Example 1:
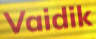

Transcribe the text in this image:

Vaidik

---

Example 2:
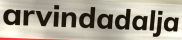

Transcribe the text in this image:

arvindadalja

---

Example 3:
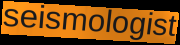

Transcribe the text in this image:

seismologist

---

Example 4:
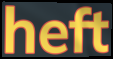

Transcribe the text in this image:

heft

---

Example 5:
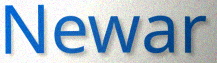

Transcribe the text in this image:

Newar